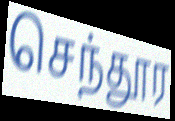
செந்தூர